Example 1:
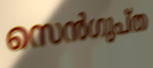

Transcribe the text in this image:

സെൻഗുപ്ത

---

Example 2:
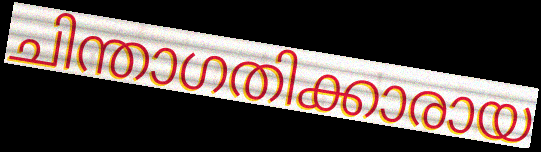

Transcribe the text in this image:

ചിന്താഗതിക്കാരായ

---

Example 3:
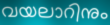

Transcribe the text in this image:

വയലാറിനും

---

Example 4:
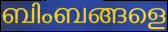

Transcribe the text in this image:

ബിംബങ്ങളെ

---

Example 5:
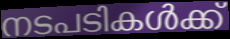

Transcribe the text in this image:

നടപടികൾക്ക്